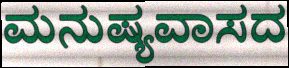
ಮನುಷ್ಯವಾಸದ